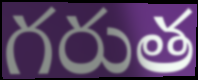
గరుత